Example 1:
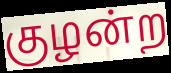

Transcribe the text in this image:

குழன்ற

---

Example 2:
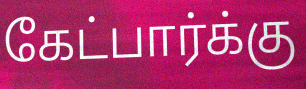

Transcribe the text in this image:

கேட்பார்க்கு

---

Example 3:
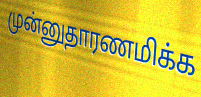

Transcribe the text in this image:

முன்னுதாரணமிக்க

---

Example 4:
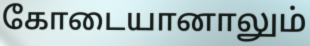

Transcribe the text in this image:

கோடையானாலும்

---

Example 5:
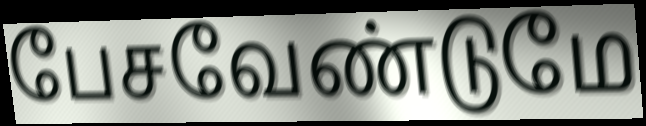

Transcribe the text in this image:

பேசவேண்டுமே